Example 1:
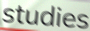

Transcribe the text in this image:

studies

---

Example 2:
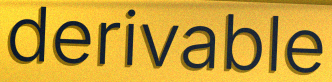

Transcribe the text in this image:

derivable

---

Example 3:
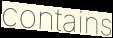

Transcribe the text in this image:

contains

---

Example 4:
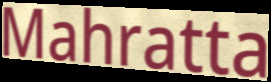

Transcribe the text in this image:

Mahratta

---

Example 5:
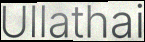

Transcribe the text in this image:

Ullathai